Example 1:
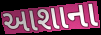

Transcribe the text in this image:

આશાના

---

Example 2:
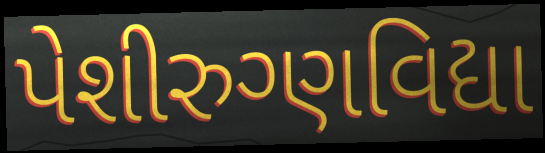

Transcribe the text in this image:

પેશીરુગ્ણવિદ્યા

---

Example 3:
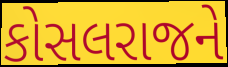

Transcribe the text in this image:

કોસલરાજને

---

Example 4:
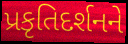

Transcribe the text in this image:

પ્રકૃતિદર્શનને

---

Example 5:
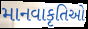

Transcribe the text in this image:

માનવાકૃતિઓ